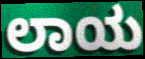
ಲಾಯ